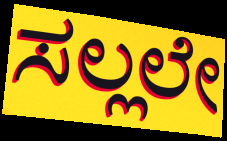
ಸಲ್ಲಲೇ